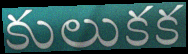
కులుకక